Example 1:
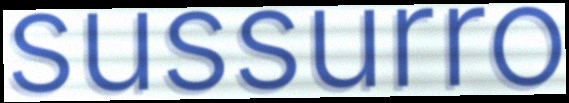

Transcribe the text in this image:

sussurro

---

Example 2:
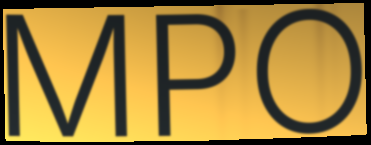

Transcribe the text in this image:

MPO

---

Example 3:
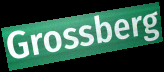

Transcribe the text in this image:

Grossberg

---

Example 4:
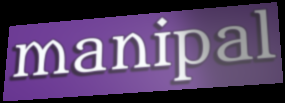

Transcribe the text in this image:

manipal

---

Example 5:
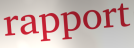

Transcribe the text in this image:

rapport